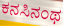
ಕನಸಿನಂಥ